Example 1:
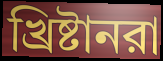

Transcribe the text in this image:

খ্রিষ্টানরা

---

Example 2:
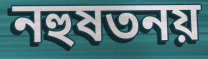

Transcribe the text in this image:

নহুষতনয়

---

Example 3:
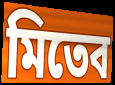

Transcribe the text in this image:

মিতেব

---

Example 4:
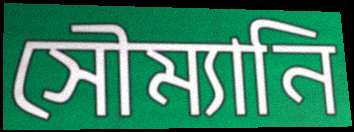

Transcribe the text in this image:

সৌম্যানি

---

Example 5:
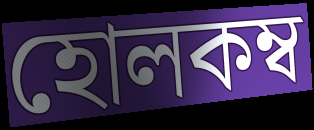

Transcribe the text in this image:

হোলকম্ব